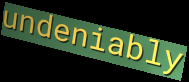
undeniably